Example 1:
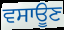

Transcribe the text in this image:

ਵਸਾਊਣ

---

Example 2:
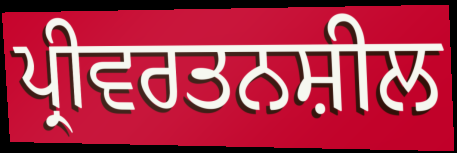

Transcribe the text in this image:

ਪ੍ਰੀਵਰਤਨਸ਼ੀਲ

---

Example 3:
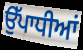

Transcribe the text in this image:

ਉੱਪਾਧੀਆਂ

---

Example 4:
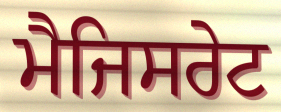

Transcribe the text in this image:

ਮੈਜਿਸਰੇਟ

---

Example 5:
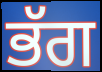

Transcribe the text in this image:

ਭੱਗ